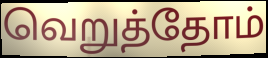
வெறுத்தோம்